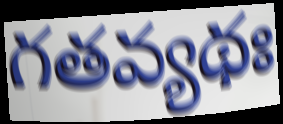
గతవ్యథః